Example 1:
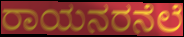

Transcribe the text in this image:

ರಾಯನರನೆಲೆ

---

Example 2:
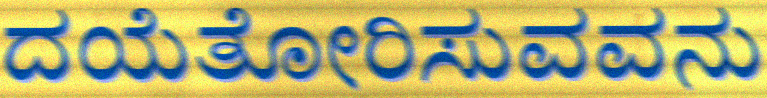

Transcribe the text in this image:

ದಯೆತೋರಿಸುವವನು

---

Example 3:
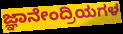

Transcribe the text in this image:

ಜ್ಞಾನೇಂದ್ರಿಯಗಳ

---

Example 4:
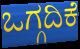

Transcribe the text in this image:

ಒಗ್ಗದಿಕೆ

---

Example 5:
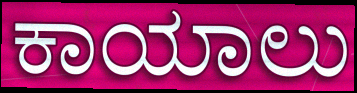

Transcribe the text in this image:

ಕಾಯಾಲು